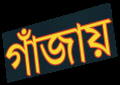
গাঁজায়